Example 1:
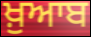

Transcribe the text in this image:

ਖ਼ੁਆਬ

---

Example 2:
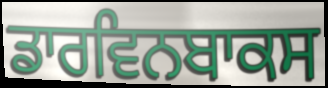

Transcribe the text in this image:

ਡਾਰਵਿਨਬਾਕਸ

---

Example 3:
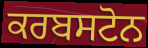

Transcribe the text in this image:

ਕਰਬਸਟੋਨ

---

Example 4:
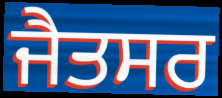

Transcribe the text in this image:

ਜੈਤਸਰ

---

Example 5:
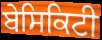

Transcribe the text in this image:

ਬੇਸਿਕਿਟੀ